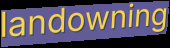
landowning